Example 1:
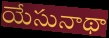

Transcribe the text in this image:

యేసునాథా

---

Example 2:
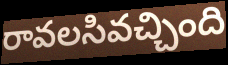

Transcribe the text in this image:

రావలసివచ్చింది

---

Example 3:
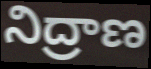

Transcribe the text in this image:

నిద్రాణ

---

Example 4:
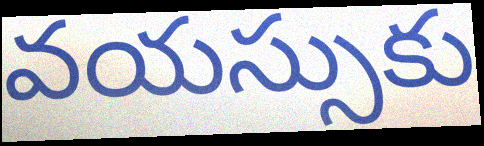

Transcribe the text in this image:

వయస్సుకు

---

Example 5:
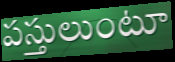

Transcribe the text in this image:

పస్తులుంటూ